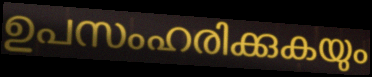
ഉപസംഹരിക്കുകയും